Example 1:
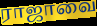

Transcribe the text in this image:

ராஜாவை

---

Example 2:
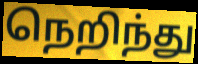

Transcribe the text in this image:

நெறிந்து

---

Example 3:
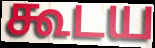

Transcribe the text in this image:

கூடய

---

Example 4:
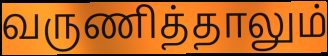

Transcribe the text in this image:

வருணித்தாலும்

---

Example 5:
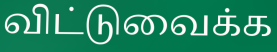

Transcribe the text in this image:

விட்டுவைக்க